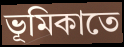
ভূমিকাতে